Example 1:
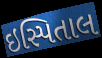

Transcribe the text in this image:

ઇસ્પિતાલ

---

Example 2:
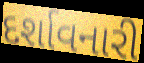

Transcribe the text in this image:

દર્શાવનારી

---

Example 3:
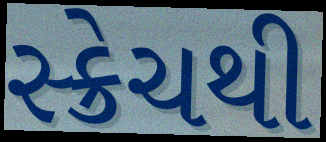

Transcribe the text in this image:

સ્ક્રેચથી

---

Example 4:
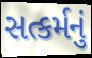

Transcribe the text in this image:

સત્કર્મનું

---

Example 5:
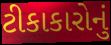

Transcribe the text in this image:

ટીકાકારોનું